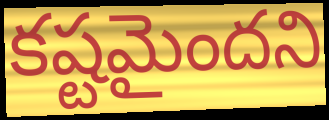
కష్టమైందని